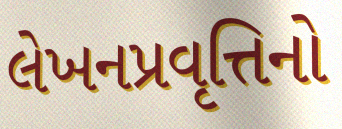
લેખનપ્રવૃત્તિનો